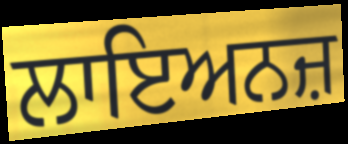
ਲਾਇਅਨਜ਼